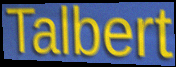
Talbert